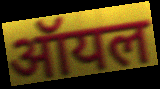
ऑयल